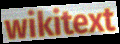
wikitext